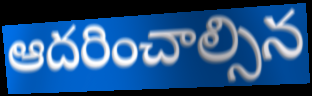
ఆదరించాల్సిన